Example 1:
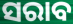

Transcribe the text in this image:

ସରାବ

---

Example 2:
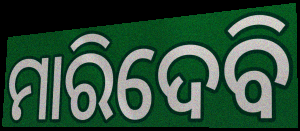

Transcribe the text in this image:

ମାରିଦେବି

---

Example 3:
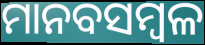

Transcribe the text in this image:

ମାନବସମ୍ବଳ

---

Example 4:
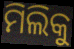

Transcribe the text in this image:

ମିଲିକୁ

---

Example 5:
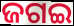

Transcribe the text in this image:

ଜଗଇ